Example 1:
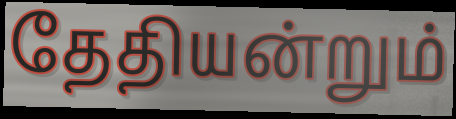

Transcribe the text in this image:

தேதியன்றும்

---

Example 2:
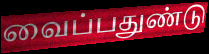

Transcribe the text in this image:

வைப்பதுண்டு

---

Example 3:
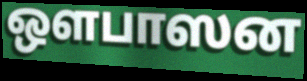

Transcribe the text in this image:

ஒளபாஸன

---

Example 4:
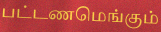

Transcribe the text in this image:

பட்டணமெங்கும்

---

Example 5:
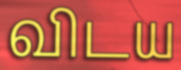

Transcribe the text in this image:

விடய